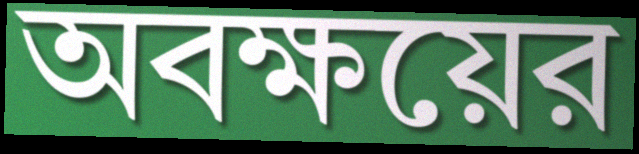
অবক্ষয়ের